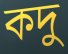
কদু